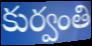
కుర్వంతి